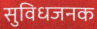
सुविधजनक